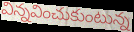
విన్నవించుకుంటున్న